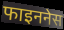
फाइननेस